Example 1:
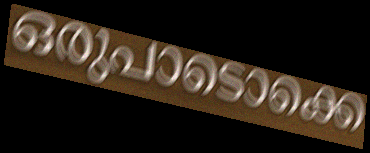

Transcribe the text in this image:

ഒരുപാടൊക്കെ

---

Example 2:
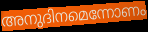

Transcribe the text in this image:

അനുദിനമെന്നോണം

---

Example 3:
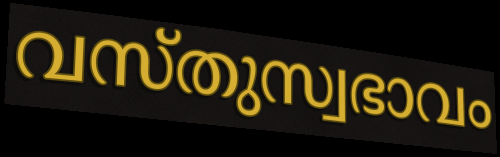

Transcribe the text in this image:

വസ്തുസ്വഭാവം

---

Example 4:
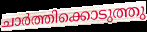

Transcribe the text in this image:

ചാർത്തിക്കൊടുത്തു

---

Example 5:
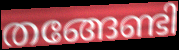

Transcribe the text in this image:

തങ്ങേണ്ടി